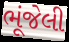
ભૂંજેલી